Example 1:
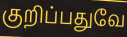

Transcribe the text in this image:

குறிப்பதுவே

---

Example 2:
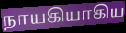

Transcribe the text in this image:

நாயகியாகிய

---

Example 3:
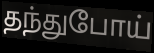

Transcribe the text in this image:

தந்துபோய்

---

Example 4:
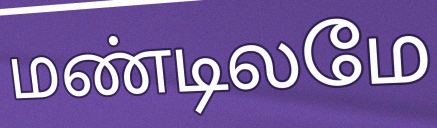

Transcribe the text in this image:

மண்டிலமே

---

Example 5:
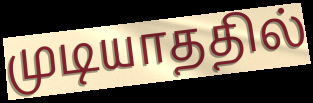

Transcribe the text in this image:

முடியாததில்